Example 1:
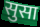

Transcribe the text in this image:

सुसा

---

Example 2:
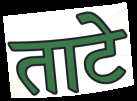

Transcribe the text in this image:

ताटे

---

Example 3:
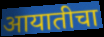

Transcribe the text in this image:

आयातीचा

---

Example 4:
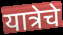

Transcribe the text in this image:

यात्रेचे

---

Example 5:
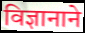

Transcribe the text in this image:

विज्ञानाने